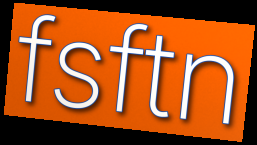
fsftn